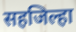
सहजिल्हा